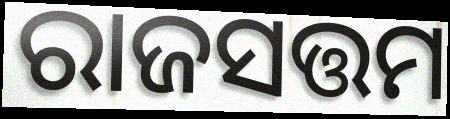
ରାଜସତ୍ତମ